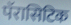
पॅरासिटिक